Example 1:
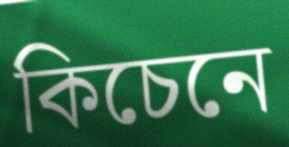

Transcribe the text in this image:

কিচেনে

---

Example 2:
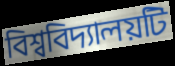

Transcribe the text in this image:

বিশ্ববিদ্যালয়টি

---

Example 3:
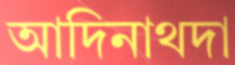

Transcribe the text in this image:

আদিনাথদা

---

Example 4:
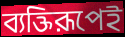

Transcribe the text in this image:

ব্যক্তিরূপেই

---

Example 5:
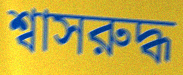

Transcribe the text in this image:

শ্বাসরুদ্ধ